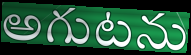
అగుటను